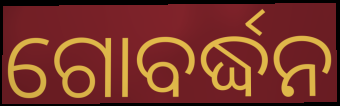
ଗୋବର୍ଦ୍ଧନ